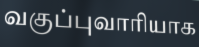
வகுப்புவாரியாக